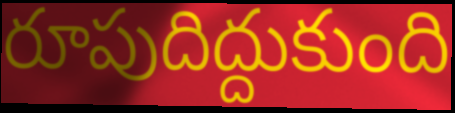
రూపుదిద్దుకుంది